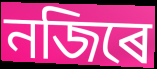
নজিৰে